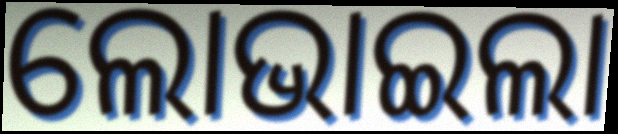
ଲୋଭାଇଲା